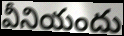
వీనియందు